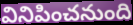
వినిపించనుంది